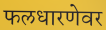
फलधारणेवर